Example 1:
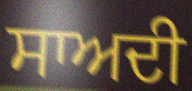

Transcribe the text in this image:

ਸਾਅਦੀ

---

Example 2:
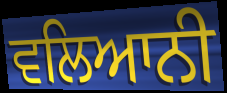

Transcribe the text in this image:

ਵਲਿਆਨੀ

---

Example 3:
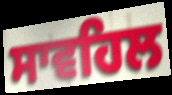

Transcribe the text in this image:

ਸਾਵਹਿਲ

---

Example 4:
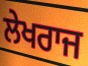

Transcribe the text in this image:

ਲੇਖਰਾਜ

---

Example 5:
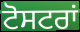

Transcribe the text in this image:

ਟੋਸਟਰਾਂ